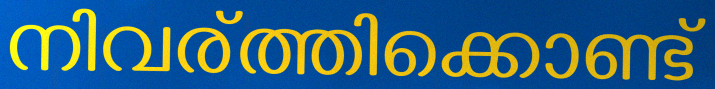
നിവര്ത്തിക്കൊണ്ട്